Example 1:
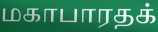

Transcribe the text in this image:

மகாபாரதக்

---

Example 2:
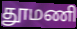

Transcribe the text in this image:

தூமணி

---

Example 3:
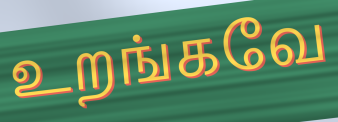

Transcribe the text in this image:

உறங்கவே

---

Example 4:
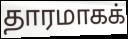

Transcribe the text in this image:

தாரமாகக்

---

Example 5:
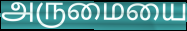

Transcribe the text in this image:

அருமையை